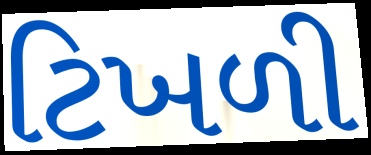
ટિખળી